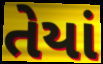
તેયાં